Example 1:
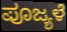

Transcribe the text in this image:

ಪೂಜ್ಯಳೆ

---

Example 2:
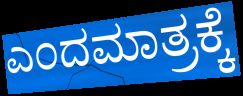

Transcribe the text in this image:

ಎಂದಮಾತ್ರಕ್ಕೆ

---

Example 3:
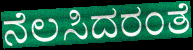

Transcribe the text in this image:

ನೆಲಸಿದರಂತೆ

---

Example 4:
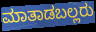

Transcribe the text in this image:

ಮಾತಾಡಬಲ್ಲರು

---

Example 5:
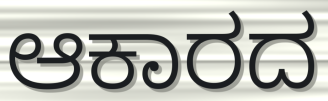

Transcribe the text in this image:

ಆಕಾರದ